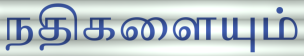
நதிகளையும்